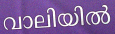
വാലിയിൽ